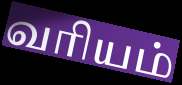
வரியம்